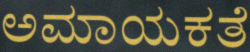
ಅಮಾಯಕತೆ